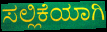
ಸಲ್ಲಿಕೆಯಾಗಿ